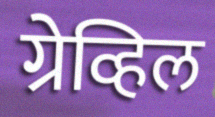
ग्रेव्हिल